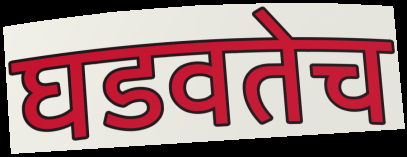
घडवतेच